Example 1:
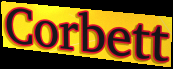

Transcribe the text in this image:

Corbett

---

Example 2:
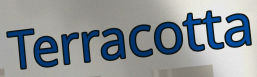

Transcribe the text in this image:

Terracotta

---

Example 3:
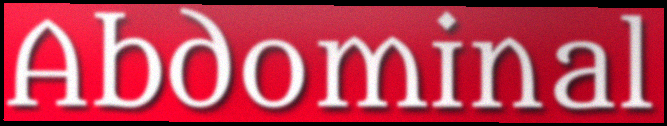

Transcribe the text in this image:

Abdominal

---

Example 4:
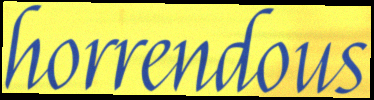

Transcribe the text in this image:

horrendous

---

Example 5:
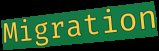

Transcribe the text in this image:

Migration